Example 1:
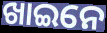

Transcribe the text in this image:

ଖାଇନେ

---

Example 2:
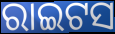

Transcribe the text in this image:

ରାଇଟସ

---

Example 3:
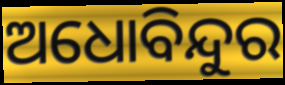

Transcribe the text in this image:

ଅଧୋବିନ୍ଦୁର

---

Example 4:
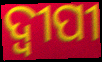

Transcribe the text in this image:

ଦ୍ଵୀପୀ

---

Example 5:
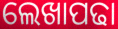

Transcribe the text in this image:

ଲେଖାପଢା